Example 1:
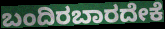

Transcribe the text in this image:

ಬಂದಿರಬಾರದೇಕೆ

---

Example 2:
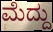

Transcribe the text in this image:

ಮೆದ್ದು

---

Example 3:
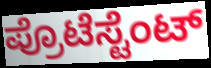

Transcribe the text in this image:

ಪ್ರೊಟೆಸ್ಟೆಂಟ್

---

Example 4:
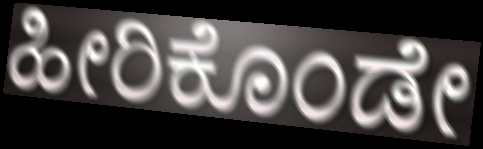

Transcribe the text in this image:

ಹೀರಿಕೊಂಡೇ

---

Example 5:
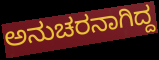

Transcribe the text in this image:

ಅನುಚರನಾಗಿದ್ದ